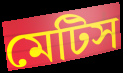
মেটিস